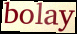
bolay